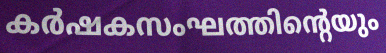
കർഷകസംഘത്തിന്റെയും